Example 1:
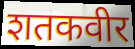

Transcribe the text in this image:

शतकवीर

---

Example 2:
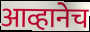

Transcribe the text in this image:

आव्हानेच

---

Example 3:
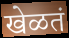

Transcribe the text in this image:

खेळतं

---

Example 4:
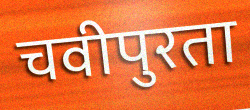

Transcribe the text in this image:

चवीपुरता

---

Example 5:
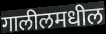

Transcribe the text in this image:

गालीलमधील